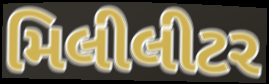
મિલીલીટર